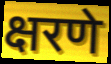
क्षरणे